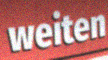
weiten